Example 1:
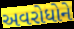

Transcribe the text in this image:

અવરોધોને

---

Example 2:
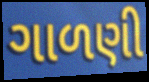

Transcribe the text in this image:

ગાળણી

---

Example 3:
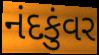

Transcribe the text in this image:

નંદકુંવર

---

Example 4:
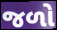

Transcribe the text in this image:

જળો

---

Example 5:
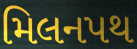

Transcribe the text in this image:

મિલનપથ